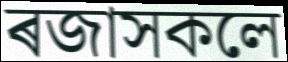
ৰজাসকলে